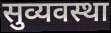
सुव्यवस्था